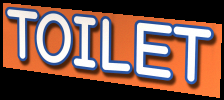
TOILET